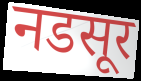
नडसूर